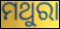
ମଥୁରା